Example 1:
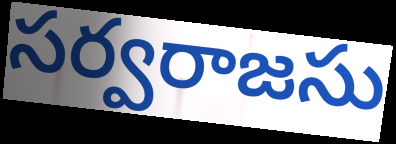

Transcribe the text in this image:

సర్వరాజసు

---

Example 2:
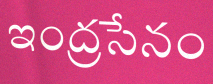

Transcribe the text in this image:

ఇంద్రసేనం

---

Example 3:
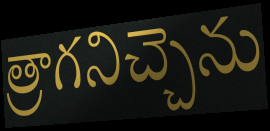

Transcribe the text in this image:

త్రాగనిచ్చెను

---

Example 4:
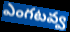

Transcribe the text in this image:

ఎంగటవ్వ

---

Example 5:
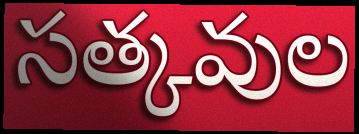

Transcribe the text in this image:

సత్కవుల